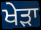
ਖੇੜਾ